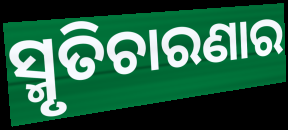
ସ୍ମୃତିଚାରଣାର